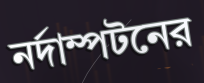
নর্দাম্পটনের